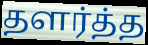
தளர்த்த